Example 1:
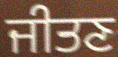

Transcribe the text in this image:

ਜੀਤਣ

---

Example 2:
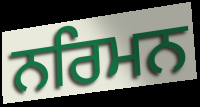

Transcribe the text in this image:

ਨਰਿਮਨ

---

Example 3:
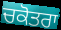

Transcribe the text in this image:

ਚਕੋਤਰਾ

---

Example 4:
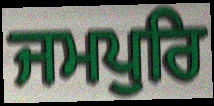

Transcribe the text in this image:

ਜਮਪੁਰਿ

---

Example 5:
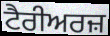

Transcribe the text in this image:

ਟੈਰੀਅਰਜ਼